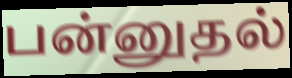
பன்னுதல்